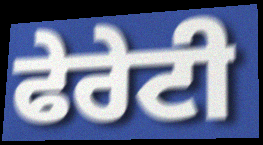
ਫੇਰੇਟੀ